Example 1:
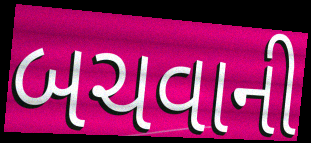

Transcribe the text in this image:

બચવાની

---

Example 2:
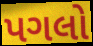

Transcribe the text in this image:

પગલો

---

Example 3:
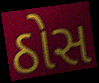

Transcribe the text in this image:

ઠોસ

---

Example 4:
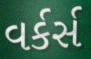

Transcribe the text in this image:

વર્કર્સ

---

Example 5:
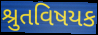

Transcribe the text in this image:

શ્રુતવિષયક